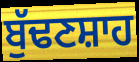
ਬੁੱਢਣਸ਼ਾਹ